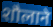
शौलाने